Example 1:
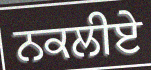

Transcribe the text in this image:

ਨਕਲੀਏ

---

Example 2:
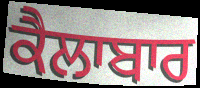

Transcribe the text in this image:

ਕੈਲਾਬਾਰ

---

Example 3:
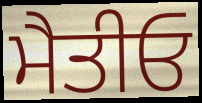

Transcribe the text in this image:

ਮੈਤੀਓ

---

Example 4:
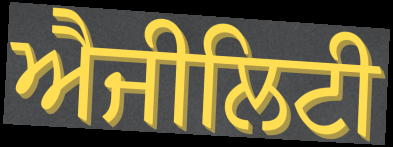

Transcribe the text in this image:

ਐਜੀਲਿਟੀ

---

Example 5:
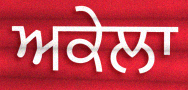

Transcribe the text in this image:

ਅਕੇਲਾ